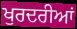
ਖੁਰਦਰੀਆਂ